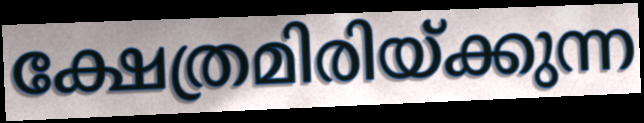
ക്ഷേത്രമിരിയ്ക്കുന്ന